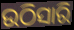
ଉଠିସାରି